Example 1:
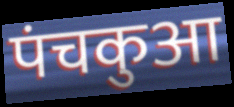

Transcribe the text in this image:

पंचकुआ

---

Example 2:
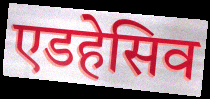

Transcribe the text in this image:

एडहेसिव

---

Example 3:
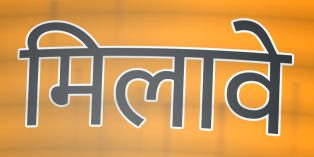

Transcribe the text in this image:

मिलावे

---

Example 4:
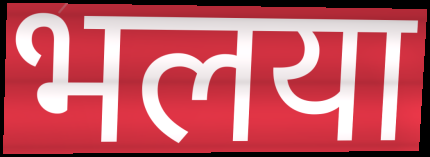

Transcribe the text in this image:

भलया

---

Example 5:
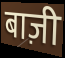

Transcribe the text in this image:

बाज़ी